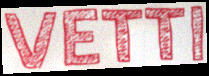
VETTI